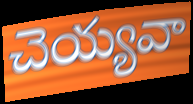
చెయ్యవా